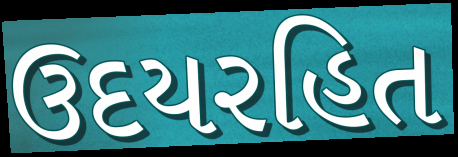
ઉદયરહિત